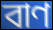
বাণ